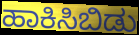
ಹಾಕಿಸಿಬಿಡು